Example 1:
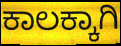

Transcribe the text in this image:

ಕಾಲಕ್ಕಾಗಿ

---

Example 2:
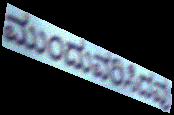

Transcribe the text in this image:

ಮುಂದುವರಿಸಿದವು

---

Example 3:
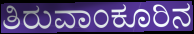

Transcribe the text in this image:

ತಿರುವಾಂಕೂರಿನ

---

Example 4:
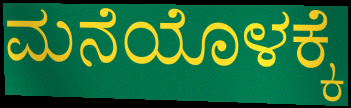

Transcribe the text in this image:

ಮನೆಯೊಳಕ್ಕೆ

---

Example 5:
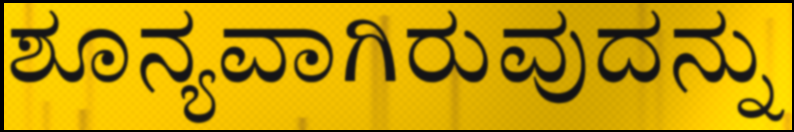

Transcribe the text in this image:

ಶೂನ್ಯವಾಗಿರುವುದನ್ನು